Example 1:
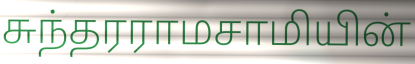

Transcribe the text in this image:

சுந்தரராமசாமியின்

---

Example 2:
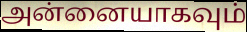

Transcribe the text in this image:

அன்னையாகவும்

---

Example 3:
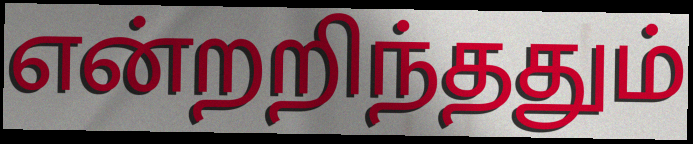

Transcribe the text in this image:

என்றறிந்ததும்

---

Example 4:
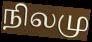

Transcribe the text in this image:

நிலமு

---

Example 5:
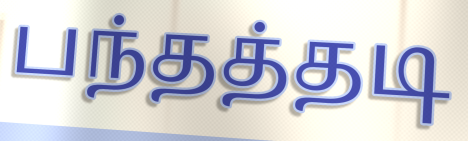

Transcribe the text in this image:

பந்தத்தடி